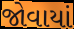
જોવાયાં